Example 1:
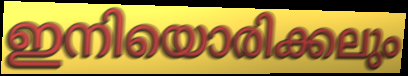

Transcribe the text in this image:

ഇനിയൊരിക്കലും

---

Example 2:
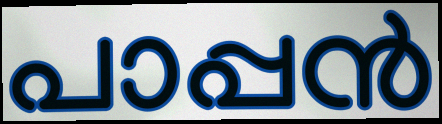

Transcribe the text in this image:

പാപ്പൻ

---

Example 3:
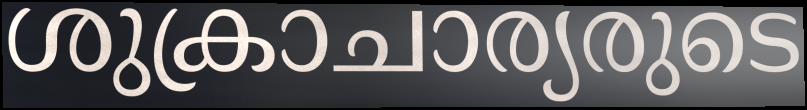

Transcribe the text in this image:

ശുക്രാചാര്യരുടെ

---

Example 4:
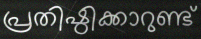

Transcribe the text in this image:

പ്രതിഷ്ഠിക്കാറുണ്ട്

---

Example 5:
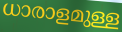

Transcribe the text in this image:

ധാരാളമുള്ള